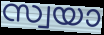
സ്വയാ